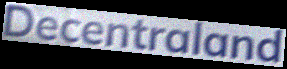
Decentraland